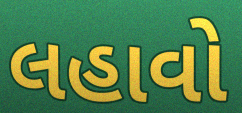
લહાવો